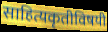
साहित्यकृतीविषयी